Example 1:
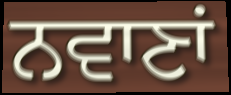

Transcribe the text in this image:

ਨਵਾਣਾਂ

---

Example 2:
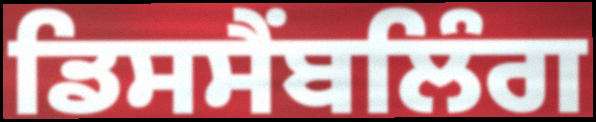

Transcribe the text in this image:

ਡਿਸਸੈਂਬਲਿੰਗ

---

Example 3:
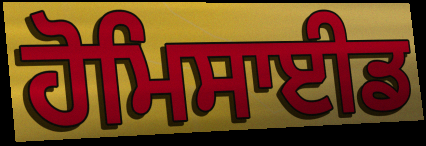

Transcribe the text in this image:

ਹੋਮਿਸਾਈਡ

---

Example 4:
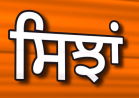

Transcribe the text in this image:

ਸਿਝਾਂ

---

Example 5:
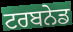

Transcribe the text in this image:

ਟਰਬਨੇਡ